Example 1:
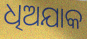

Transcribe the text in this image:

ଧିଅଯାକ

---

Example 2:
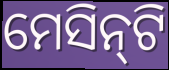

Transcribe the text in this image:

ମେସିନ୍‌ଟି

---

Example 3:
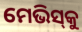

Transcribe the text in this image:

ମେଭିସ୍‌କୁ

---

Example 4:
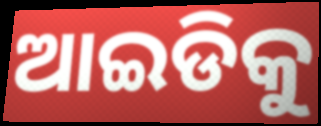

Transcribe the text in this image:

ଆଇଡିକୁ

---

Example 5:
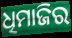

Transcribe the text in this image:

ଧିମାଜିର